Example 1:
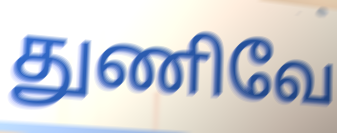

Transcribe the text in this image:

துணிவே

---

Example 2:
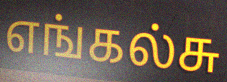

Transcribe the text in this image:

எங்கல்சு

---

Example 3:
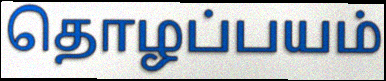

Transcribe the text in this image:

தொழப்பயம்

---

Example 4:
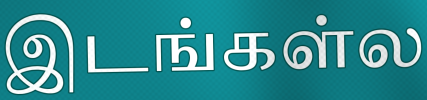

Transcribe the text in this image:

இடங்கள்ல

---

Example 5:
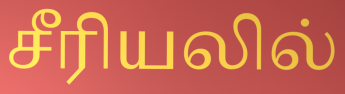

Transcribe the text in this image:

சீரியலில்